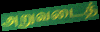
அறுவடைத்